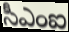
సీఎంఐ